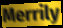
Merrily